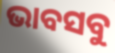
ଭାବସବୁ